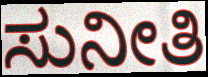
ಸುನೀತಿ